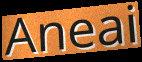
Aneai